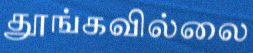
தூங்கவில்லை